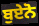
ਬੁਏਨੋ